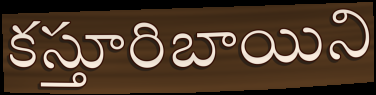
కస్తూరిబాయిని